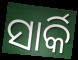
ସାର୍କି